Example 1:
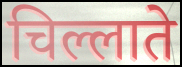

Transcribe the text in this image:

चिल्लाते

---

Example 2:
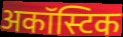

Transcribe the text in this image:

अकॉस्टिक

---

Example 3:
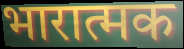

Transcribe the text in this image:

भारात्मक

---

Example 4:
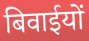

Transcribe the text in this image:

बिवाईयों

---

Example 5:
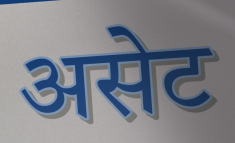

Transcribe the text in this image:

असेट